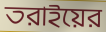
তরাইয়ের